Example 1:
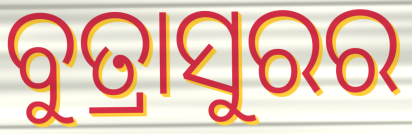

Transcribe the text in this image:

ବୁତ୍ରାସୁରର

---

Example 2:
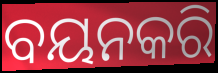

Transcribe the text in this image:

ବୟନକରି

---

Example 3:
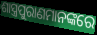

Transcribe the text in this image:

ଶାସ୍ତ୍ରପୁରାଣମାନଙ୍କରେ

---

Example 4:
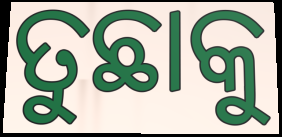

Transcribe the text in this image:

ତୁଛାକୁ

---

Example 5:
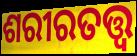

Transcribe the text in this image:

ଶରୀରତତ୍ତ୍ୱ